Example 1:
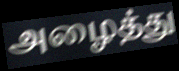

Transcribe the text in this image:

அழைத்து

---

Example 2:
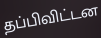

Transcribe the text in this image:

தப்பிவிட்டன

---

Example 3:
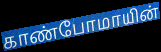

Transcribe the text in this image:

காண்போமாயின்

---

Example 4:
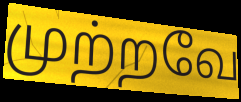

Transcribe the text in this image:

முற்றவே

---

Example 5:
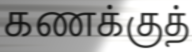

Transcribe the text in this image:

கணக்குத்